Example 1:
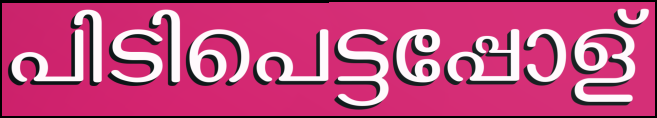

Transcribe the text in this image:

പിടിപെട്ടപ്പോള്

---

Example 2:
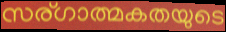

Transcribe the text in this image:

സര്ഗാത്മകതയുടെ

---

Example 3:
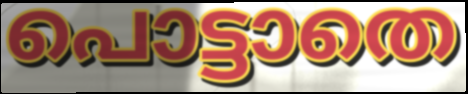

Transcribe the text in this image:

പൊട്ടാതെ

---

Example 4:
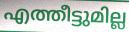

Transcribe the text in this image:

എത്തീട്ടുമില്ല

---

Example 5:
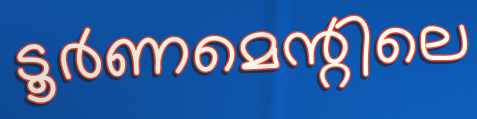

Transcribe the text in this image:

ടൂർണമെന്റിലെ